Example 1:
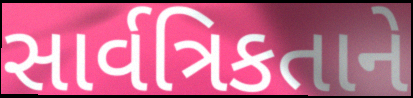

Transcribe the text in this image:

સાર્વત્રિકતાને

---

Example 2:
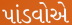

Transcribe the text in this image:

પાંડવોએ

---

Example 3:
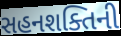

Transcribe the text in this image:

સહનશક્તિની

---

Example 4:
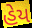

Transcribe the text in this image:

હેય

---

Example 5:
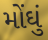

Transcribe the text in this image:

મોંઘું